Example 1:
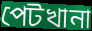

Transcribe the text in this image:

পেটখানা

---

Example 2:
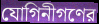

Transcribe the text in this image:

যোগিনীগণের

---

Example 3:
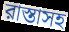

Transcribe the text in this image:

রাস্তাসহ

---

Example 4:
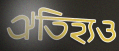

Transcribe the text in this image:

ঐতিহ্যও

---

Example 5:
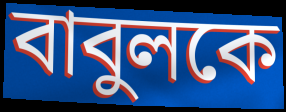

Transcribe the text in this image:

বাবুলকে